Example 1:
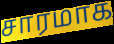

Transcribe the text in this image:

சாரமாக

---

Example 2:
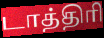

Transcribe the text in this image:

டாத்திரி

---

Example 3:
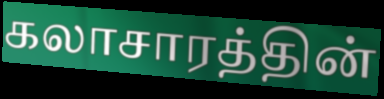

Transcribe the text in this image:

கலாசாரத்தின்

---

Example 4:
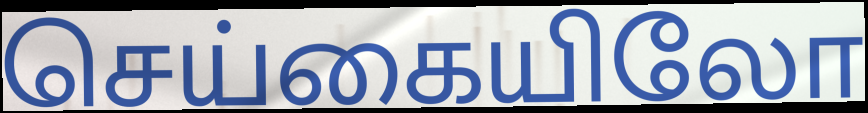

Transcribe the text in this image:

செய்கையிலோ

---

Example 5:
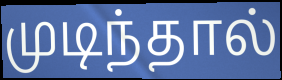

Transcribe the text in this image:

முடிந்தால்